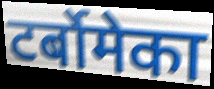
टर्बोमेका